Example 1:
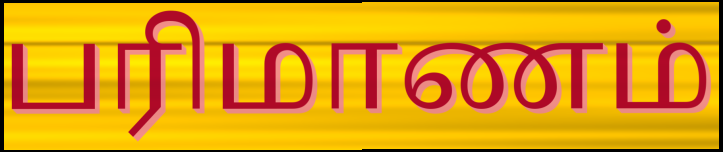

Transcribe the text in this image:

பரிமாணம்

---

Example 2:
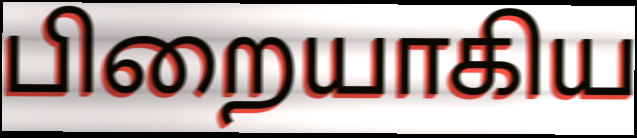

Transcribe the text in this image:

பிறையாகிய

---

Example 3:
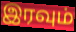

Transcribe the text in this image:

இரவும்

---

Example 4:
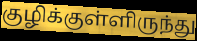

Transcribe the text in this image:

குழிக்குள்ளிருந்து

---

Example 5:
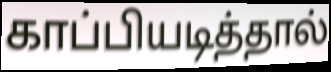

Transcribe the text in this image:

காப்பியடித்தால்